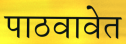
पाठवावेत